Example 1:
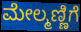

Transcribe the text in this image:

ಮೇಲ್ಮಣ್ಣಿಗೆ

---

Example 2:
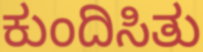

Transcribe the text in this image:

ಕುಂದಿಸಿತು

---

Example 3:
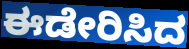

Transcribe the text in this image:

ಈಡೇರಿಸಿದ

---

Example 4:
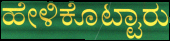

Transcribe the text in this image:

ಹೇಳಿಕೊಟ್ಟಾರು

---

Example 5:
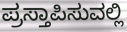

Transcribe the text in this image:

ಪ್ರಸ್ತಾಪಿಸುವಲ್ಲಿ